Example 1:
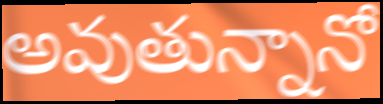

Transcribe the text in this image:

అవుతున్నానో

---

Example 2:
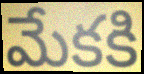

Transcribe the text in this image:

మేకకి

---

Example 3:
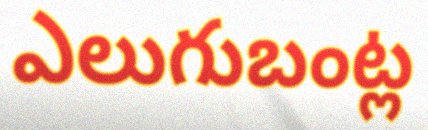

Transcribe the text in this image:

ఎలుగుబంట్ల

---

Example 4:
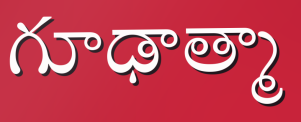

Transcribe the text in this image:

గూఢాత్మా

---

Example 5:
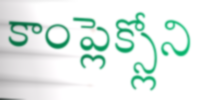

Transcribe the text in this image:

కాంప్లెక్స్లోని